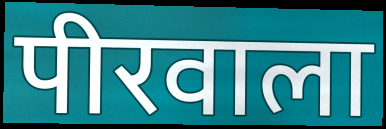
पीरवाला